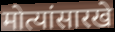
मोत्यांसारखे